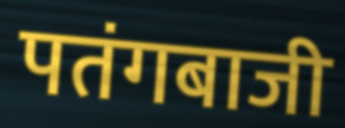
पतंगबाजी